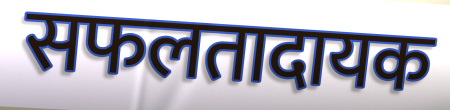
सफलतादायक